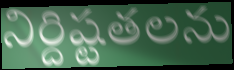
నిర్దిష్టతలను